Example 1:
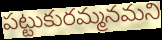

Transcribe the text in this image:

పట్టుకురమ్మనమని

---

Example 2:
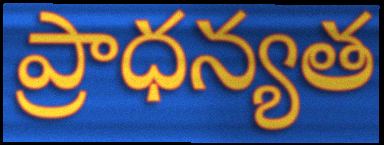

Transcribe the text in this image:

ప్రాధన్యత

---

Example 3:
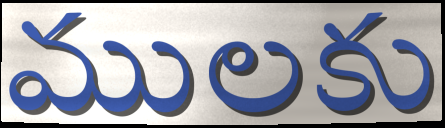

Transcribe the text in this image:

ములకు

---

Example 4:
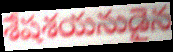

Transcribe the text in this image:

శేషశయనుడైన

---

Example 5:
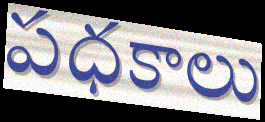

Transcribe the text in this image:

పధకాలు